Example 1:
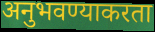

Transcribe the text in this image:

अनुभवण्याकरता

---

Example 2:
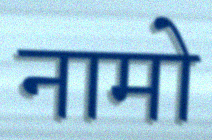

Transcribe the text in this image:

नामो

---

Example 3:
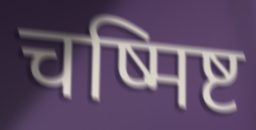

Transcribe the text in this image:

चष्मिष्ट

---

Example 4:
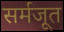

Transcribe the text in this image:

सर्मजूत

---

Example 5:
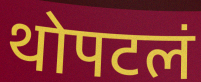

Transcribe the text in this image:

थोपटलं